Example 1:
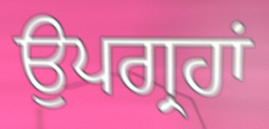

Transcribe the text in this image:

ਉਪਗ੍ਰਹਾਂ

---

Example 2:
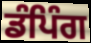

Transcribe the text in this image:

ਡੰਪਿੰਗ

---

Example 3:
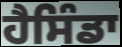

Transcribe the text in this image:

ਹੈਸਿੰਡਾ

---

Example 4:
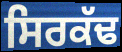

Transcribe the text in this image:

ਸਿਰਕੱਢ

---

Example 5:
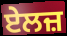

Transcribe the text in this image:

ਏਲਜ਼